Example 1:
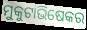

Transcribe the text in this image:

ମୁକୁଟାଭିଷେକର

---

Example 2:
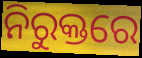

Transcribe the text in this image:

ନିରୁକ୍ତରେ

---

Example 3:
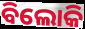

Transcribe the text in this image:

ବିଲୋକି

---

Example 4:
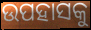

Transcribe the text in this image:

ଉପହାସକୁ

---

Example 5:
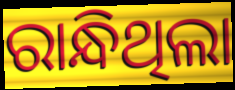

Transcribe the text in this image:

ରାନ୍ଧିଥିଲା